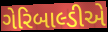
ગેરિબાલ્ડીએ